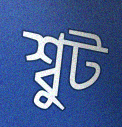
শ্বুট